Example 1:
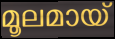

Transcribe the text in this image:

മൂലമായ്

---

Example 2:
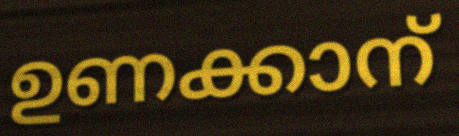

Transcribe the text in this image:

ഉണക്കാന്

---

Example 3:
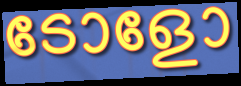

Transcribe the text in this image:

ടോളോ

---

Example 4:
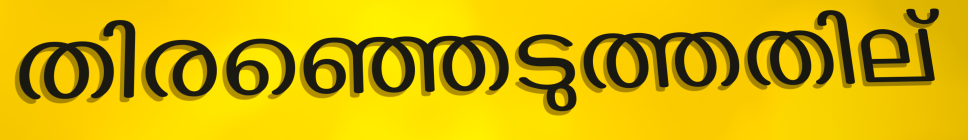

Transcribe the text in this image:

തിരഞ്ഞെടുത്തതില്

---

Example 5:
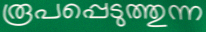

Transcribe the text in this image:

രൂപപ്പെടുത്തുന്ന